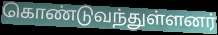
கொண்டுவந்துள்ளனர்